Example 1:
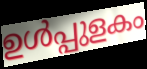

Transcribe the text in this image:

ഉൾപ്പുളകം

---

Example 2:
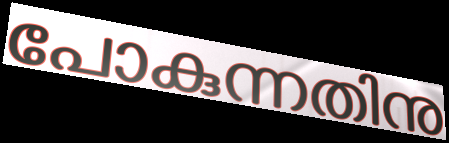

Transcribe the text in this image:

പോകുന്നതിനു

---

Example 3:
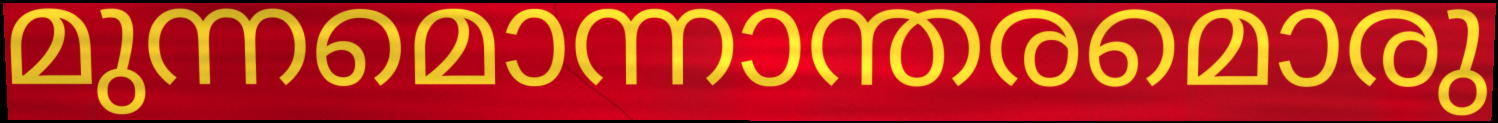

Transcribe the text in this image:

മുന്നമൊന്നാന്തരമൊരു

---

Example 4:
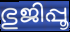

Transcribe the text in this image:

ഭുജിപ്പൂ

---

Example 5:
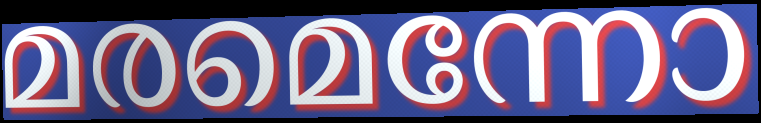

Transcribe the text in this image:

മരമെന്നോ